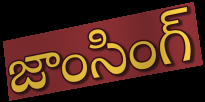
జాంసింగ్